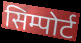
सिम्पोर्ट